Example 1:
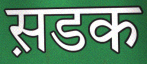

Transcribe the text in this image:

स़डक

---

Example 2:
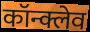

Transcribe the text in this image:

कॉन्क्लेव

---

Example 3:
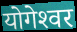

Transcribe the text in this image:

योगेश्‍वर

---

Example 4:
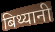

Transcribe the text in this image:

बिथ्यानी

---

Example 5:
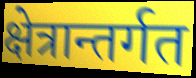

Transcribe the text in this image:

क्षेत्रान्तर्गत